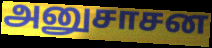
அனுசாசன